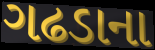
ગઢડાના